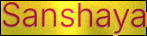
Sanshaya